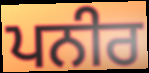
ਪਨੀਰ